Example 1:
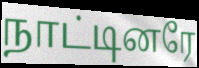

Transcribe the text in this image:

நாட்டினரே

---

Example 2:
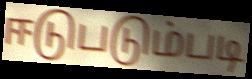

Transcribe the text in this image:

ஈடுபடும்படி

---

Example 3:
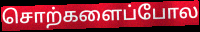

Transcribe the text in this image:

சொற்களைப்போல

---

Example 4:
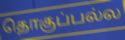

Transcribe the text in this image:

தொகுப்பல்ல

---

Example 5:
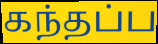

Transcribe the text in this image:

கந்தப்ப